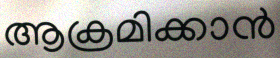
ആക്രമിക്കാൻ